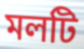
মলটি